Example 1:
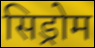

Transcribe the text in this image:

सिड्रोम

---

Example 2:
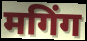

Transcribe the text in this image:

मगिंग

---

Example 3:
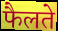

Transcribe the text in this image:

फैलते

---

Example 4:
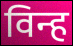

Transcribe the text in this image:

विन्ह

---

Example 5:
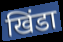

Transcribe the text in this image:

खिंडा